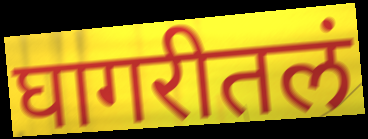
घागरीतलं